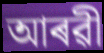
আৰৱী